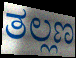
ತಲ್ಲಣ